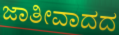
ಜಾತೀವಾದದ